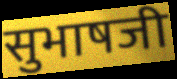
सुभाषजी